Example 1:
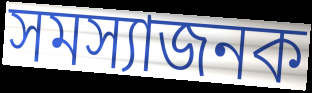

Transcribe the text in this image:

সমস্যাজনক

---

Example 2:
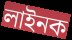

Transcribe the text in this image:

লাইনক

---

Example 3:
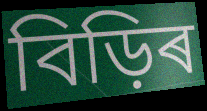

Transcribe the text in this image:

বিড়িৰ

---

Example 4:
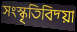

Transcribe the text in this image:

সংস্কৃতিবিদ্য়া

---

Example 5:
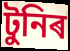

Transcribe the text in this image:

টুনিৰ